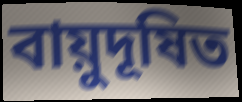
বায়ুদূষিত